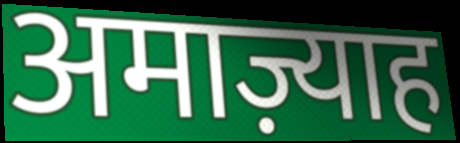
अमाज़्याह